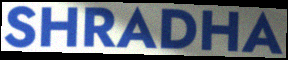
SHRADHA